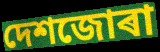
দেশজোৰা